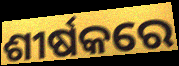
ଶୀର୍ଷକରେ